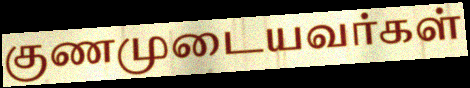
குணமுடையவர்கள்